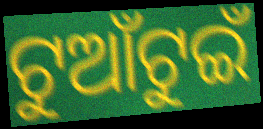
ଟୁଆଁଟୁଇଁ